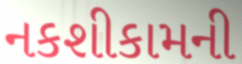
નકશીકામની